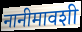
नानीमावशी